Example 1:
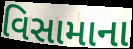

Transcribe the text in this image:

વિસામાના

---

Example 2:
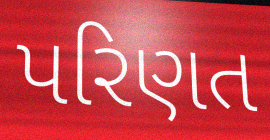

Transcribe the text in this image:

પરિણત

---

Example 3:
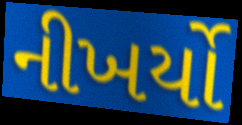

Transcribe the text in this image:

નીખર્યો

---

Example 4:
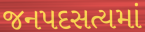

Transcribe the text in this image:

જનપદસત્યમાં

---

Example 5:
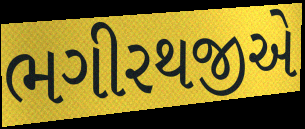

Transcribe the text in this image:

ભગીરથજીએ